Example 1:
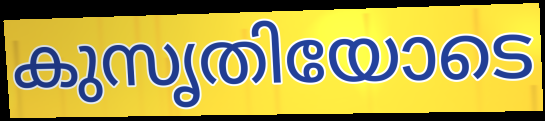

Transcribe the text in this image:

കുസൃതിയോടെ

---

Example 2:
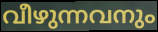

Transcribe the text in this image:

വീഴുന്നവനും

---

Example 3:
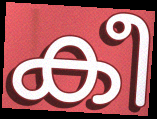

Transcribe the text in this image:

കീ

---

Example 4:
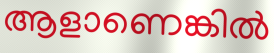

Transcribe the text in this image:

ആളാണെങ്കിൽ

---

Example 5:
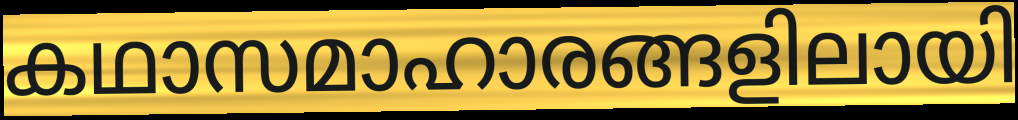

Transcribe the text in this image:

കഥാസമാഹാരങ്ങളിലായി